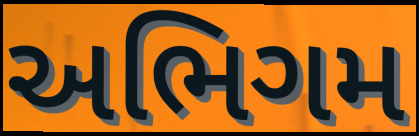
અભિગમ